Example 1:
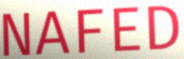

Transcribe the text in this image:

NAFED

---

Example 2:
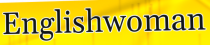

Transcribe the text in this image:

Englishwoman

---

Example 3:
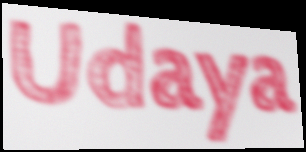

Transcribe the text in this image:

Udaya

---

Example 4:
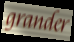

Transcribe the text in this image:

grander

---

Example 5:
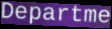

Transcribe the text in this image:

Departme